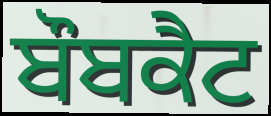
ਬੌਬਕੈਟ